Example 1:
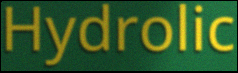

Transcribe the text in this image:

Hydrolic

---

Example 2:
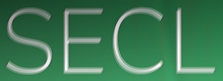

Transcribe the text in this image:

SECL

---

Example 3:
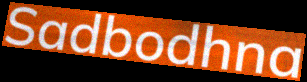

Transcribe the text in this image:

Sadbodhna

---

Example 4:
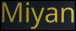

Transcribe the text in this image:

Miyan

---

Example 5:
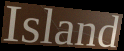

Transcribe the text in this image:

Island